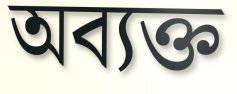
অব্যক্ত